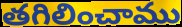
తగిలించాము